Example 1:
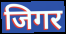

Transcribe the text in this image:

जिगर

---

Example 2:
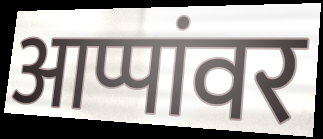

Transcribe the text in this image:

आप्पांवर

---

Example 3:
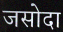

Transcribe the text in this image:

जसोदा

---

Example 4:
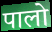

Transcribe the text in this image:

पालो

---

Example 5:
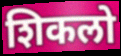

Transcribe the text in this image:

शिकलो